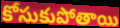
కోసుకుపోతాయి